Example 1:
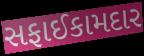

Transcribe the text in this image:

સફાઈકામદાર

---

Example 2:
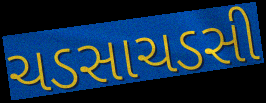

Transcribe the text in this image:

ચડસાચડસી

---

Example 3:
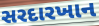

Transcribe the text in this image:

સરદારખાન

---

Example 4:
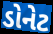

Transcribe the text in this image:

ડોનેટ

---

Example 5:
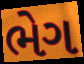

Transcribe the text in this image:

ભેગ